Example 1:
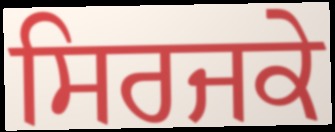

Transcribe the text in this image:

ਸਿਰਜਕੇ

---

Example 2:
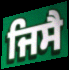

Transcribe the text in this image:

ਜਿਸੈ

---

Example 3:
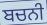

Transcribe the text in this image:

ਬਚਨੀ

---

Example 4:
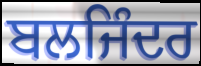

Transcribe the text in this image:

ਬਲਜਿੰਦਰ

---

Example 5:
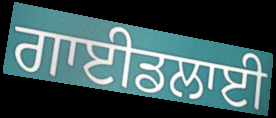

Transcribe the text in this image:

ਗਾਈਡਲਾਈ